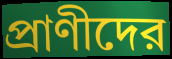
প্রাণীদের